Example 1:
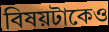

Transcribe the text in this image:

বিষয়টাকেও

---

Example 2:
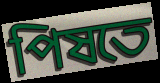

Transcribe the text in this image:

পিষতে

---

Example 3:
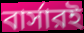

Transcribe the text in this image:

বার্সারই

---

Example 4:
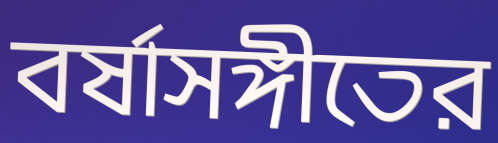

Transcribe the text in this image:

বর্ষাসঙ্গীতের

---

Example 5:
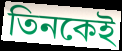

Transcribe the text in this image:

তিনকেই